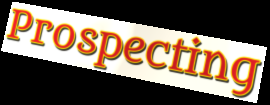
Prospecting